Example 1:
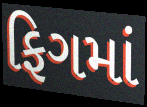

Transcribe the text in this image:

ફિગમાં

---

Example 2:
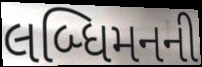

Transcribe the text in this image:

લબ્ધિમનની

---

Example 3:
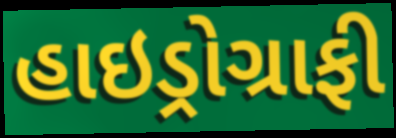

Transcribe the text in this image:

હાઇડ્રોગ્રાફી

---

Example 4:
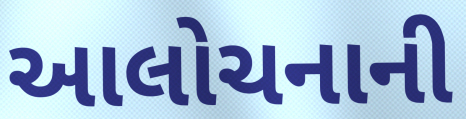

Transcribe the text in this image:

આલોચનાની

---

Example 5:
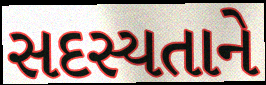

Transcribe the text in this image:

સદસ્યતાને